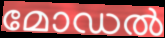
മോഡൽ